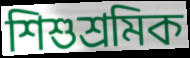
শিশুশ্ৰমিক